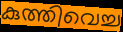
കുത്തിവെച്ച